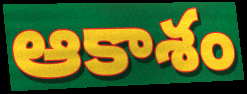
ఆకాశం